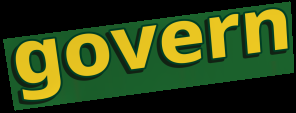
govern